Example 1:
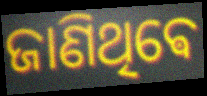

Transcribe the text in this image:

ଜାଣିଥିଵେ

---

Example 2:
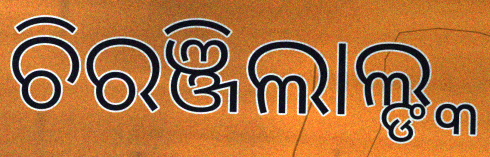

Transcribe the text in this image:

ଚିରଞ୍ଜିଲାଲ୍ଙ୍କ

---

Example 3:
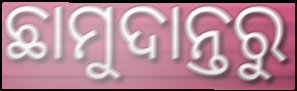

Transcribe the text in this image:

ଛାମୁଦାନ୍ତରୁ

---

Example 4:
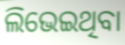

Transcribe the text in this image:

ଲିଭେଇଥିବା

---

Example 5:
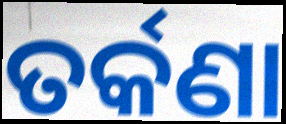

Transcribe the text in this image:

ତର୍କଣା